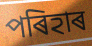
পৰিহাৰ